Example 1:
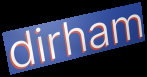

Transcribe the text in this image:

dirham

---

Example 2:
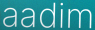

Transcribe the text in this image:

aadim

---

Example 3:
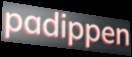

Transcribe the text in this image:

padippen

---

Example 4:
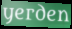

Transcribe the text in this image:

yerden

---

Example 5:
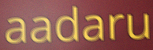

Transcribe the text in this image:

aadaru